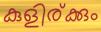
കുളിര്ക്കും